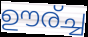
ഊര്ച്ച